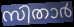
സിതാർ